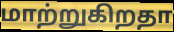
மாற்றுகிறதா